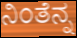
ನಿಂತೆನ್ನ